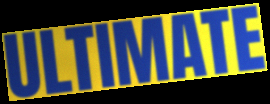
ULTIMATE